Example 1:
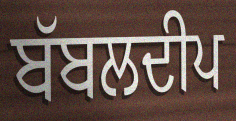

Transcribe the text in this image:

ਬੱਬਲਦੀਪ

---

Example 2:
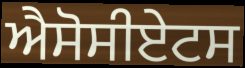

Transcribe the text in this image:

ਐਸੋਸੀਏਟਸ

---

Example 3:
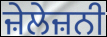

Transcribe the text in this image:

ਜ਼ੇਲੇਜ਼ਨੀ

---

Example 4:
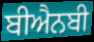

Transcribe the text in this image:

ਬੀਐਨਬੀ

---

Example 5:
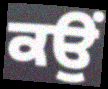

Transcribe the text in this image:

ਕਉਂ